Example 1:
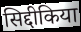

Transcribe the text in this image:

सिद्दीकिया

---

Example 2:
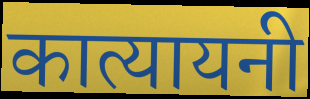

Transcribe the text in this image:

कात्यायनी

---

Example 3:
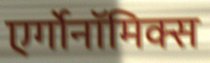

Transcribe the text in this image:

एर्गोनॉमिक्स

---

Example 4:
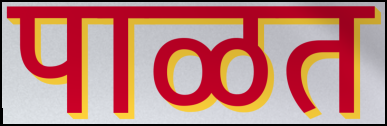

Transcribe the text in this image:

पाळत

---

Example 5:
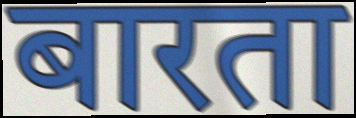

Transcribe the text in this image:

बारता